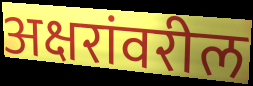
अक्षरांवरील